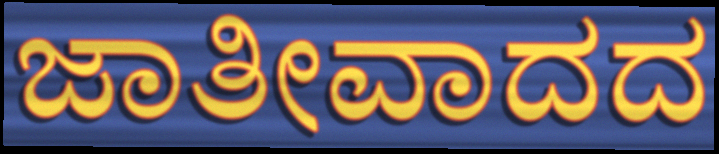
ಜಾತೀವಾದದ